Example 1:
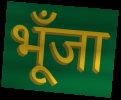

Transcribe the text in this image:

भूँजा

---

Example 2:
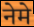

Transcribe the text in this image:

नेमे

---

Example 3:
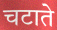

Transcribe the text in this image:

चटाते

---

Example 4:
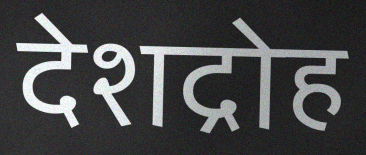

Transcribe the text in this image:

देशद्रोह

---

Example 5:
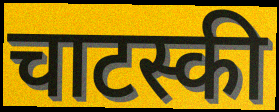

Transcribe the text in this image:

चाटस्की